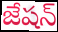
జేషన్